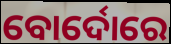
ବୋର୍ଦୋରେ